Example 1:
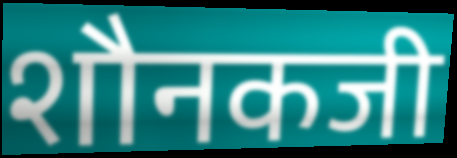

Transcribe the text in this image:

शौनकजी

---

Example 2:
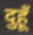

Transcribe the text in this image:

दुहूँ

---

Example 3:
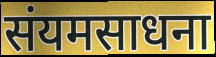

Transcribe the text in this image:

संयमसाधना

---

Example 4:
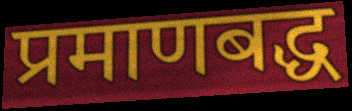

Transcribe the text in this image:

प्रमाणबद्ध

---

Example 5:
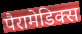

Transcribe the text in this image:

पैरामेडिक्स